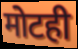
मोटही